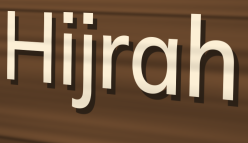
Hijrah